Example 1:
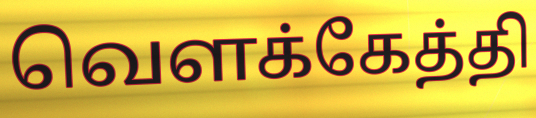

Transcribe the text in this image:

வெளக்கேத்தி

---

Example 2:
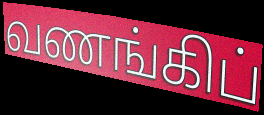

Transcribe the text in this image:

வணங்கிப்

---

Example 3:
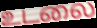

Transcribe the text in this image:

உடலை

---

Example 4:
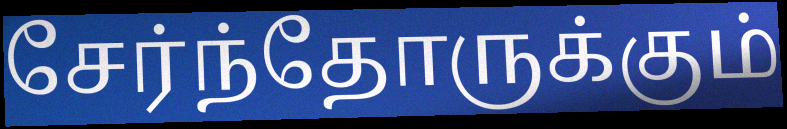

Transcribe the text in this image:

சேர்ந்தோருக்கும்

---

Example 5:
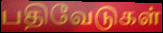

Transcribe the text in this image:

பதிவேடுகள்